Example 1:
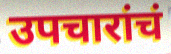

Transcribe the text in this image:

उपचारांचं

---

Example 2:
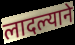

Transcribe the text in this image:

लादल्याने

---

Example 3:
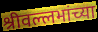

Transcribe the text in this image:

श्रीवल्लभांच्या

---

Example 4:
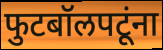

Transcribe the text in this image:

फुटबॉलपटूंना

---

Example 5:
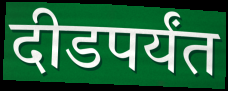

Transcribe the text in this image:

दीडपर्यंत